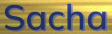
Sacha